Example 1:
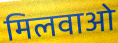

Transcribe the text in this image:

मिलवाओ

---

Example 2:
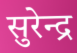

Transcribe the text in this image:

सुरेन्द्र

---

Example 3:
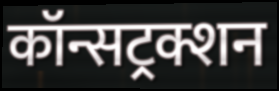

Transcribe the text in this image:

कॉन्सट्रक्शन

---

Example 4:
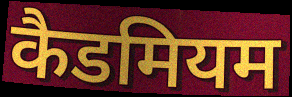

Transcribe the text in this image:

कैडमियम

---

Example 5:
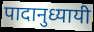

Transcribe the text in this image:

पादानुध्यायी